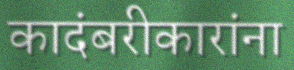
कादंबरीकारांना